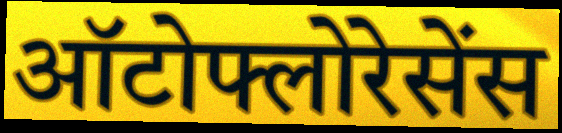
ऑटोफ्लोरेसेंस